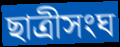
ছাত্রীসংঘ